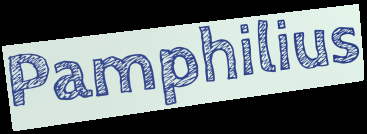
Pamphilius